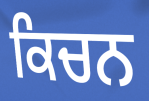
ਕਿਚਨ